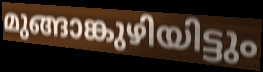
മുങ്ങാങ്കുഴിയിട്ടും